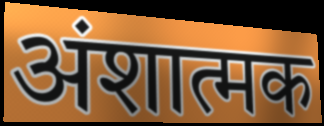
अंशात्मक